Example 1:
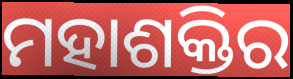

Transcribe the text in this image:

ମହାଶକ୍ତିର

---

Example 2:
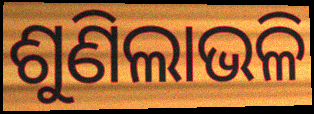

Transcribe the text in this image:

ଶୁଣିଲାଭଳି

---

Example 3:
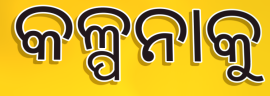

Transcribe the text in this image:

କଳ୍ପନାକୁ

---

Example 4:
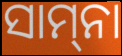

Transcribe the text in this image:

ସାମ୍‍ନା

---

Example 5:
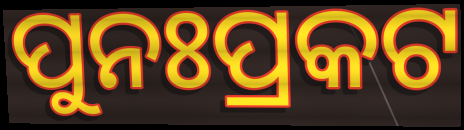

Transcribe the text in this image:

ପୁନଃପ୍ରକଟ